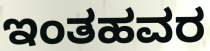
ಇಂತಹವರ